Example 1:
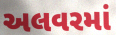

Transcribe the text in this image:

અલવરમાં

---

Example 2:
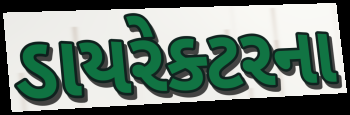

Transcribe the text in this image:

ડાયરેક્ટરના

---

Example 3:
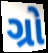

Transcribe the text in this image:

ગ્રો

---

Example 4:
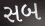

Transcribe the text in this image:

સબ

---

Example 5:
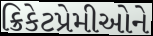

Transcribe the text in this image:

ક્રિકેટપ્રેમીઓને